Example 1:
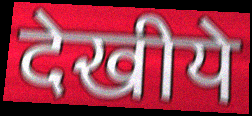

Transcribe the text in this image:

देखीये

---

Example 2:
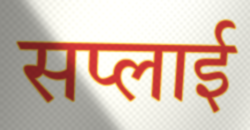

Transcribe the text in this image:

सप्लाई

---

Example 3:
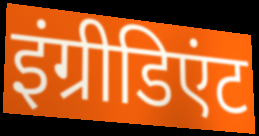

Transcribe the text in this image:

इंग्रीडिएंट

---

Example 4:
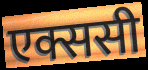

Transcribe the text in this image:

एक्ससी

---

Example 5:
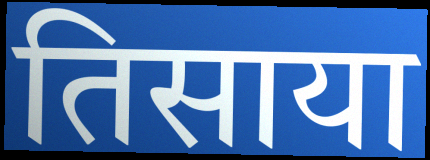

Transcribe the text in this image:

तिसाया